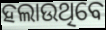
ହଲାଉଥିବେ